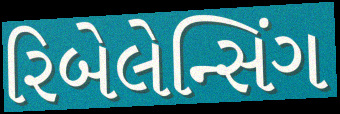
રિબેલેન્સિંગ